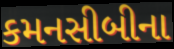
કમનસીબીના